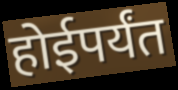
होईपर्यंत